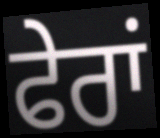
ਫੇਰਾਂ